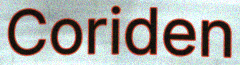
Coriden